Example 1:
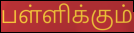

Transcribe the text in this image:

பள்ளிக்கும்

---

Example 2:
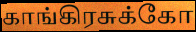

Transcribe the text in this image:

காங்கிரசுக்கோ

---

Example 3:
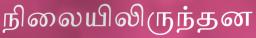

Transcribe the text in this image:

நிலையிலிருந்தன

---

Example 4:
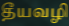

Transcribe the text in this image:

தீயவழி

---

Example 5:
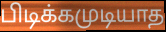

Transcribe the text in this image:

பிடிக்கமுடியாத